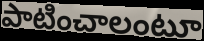
పాటించాలంటూ